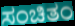
ಸಂಚಿತಂ